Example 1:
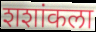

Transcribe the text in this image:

शशांकला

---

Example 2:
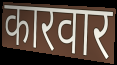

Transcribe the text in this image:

कारवार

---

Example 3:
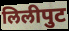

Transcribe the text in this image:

लिलीपुट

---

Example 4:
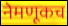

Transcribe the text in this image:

नेमणूकच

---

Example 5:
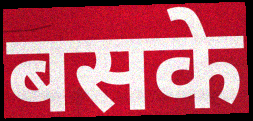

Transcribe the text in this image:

बसके